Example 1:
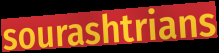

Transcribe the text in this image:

sourashtrians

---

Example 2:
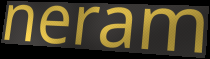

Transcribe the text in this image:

neram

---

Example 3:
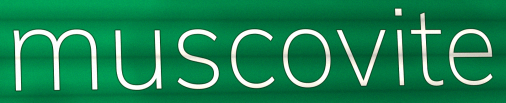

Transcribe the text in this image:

muscovite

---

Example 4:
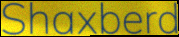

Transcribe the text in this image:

Shaxberd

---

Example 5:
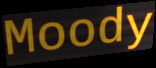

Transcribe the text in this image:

Moody